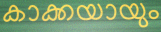
കാക്കയായും